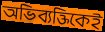
অভিব্যক্তিকেই